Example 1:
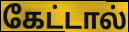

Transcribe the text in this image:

கேட்டால்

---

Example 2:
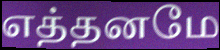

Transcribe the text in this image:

எத்தனமே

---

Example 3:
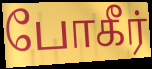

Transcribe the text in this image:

போகீர்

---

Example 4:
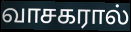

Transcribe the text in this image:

வாசகரால்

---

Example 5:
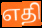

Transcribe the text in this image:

எதி